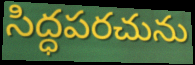
సిద్ధపరచును